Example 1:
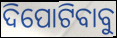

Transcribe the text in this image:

ଦିପୋଟିବାବୁ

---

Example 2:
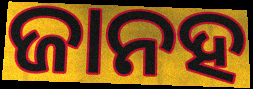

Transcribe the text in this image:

ଜାନହ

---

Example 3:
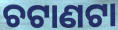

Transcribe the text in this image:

ଚଟାଣଟା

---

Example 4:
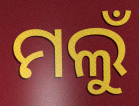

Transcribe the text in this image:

ମଲୁଁ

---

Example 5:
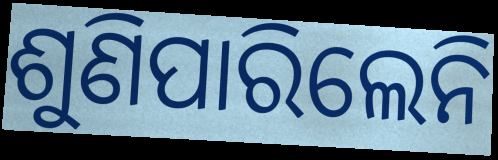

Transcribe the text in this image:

ଶୁଣିପାରିଲେନି